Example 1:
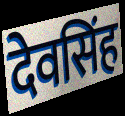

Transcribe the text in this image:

देवसिंह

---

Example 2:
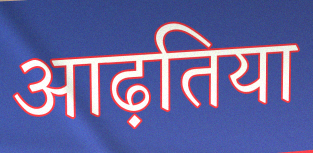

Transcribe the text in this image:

आढ़तिया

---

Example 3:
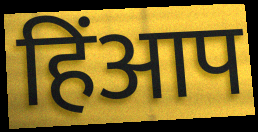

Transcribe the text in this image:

हिंआप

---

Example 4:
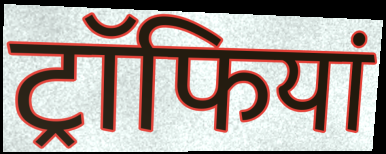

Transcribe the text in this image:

ट्रॉफियां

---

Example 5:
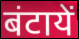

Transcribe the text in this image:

बंटायें